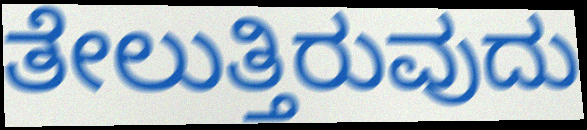
ತೇಲುತ್ತಿರುವುದು